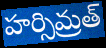
హర్సిమ్రత్